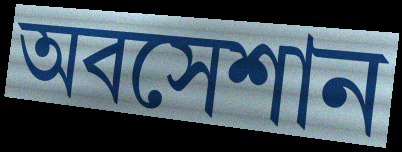
অবসেশান